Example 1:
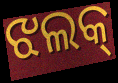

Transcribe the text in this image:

ଝଲକ୍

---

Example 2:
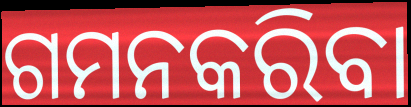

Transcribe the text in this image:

ଗମନକରିବା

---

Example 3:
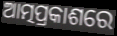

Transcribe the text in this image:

ଆତ୍ମପ୍ରକାଶରେ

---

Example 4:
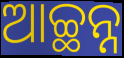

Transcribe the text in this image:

ଆଚ୍ଛନ୍ନ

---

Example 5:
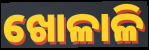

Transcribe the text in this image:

ଖୋଳାଳି